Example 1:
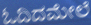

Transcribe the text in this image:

ಓದಿದಮೇಲೆ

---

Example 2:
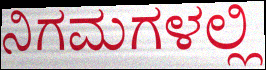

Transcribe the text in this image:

ನಿಗಮಗಳಲ್ಲಿ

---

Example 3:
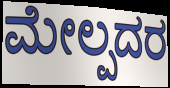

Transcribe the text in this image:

ಮೇಲ್ಪದರ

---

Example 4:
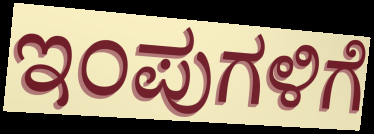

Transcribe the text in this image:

ಇಂಪುಗಳಿಗೆ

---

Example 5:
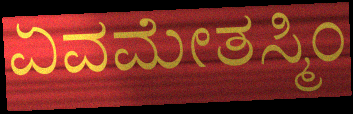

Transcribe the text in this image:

ಏವಮೇತಸ್ಮಿಂ